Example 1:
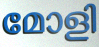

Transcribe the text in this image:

മോളി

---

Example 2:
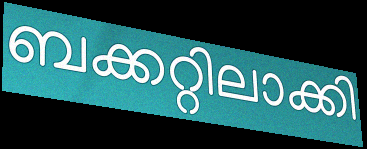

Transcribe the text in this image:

ബക്കറ്റിലാക്കി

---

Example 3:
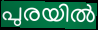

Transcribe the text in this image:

പുരയിൽ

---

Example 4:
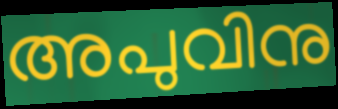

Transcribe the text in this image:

അപുവിനു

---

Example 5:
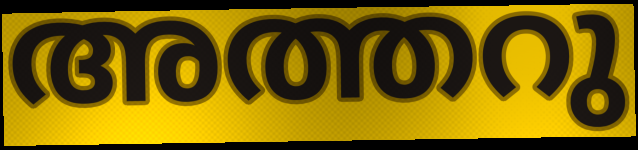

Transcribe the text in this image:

അത്തറു